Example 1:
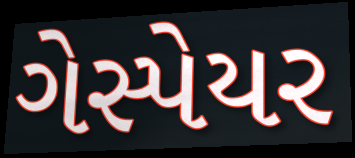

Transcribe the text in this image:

ગેસ્પેયર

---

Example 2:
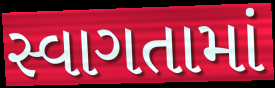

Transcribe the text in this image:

સ્વાગતામાં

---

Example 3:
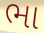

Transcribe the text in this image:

ભા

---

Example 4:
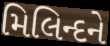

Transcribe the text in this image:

મિલિન્દને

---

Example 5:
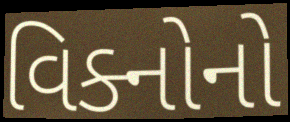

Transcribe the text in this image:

વિક્નોનો